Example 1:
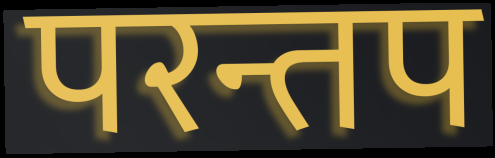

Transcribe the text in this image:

परन्तप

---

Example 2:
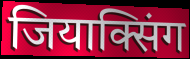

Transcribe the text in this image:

जियाक्सिंग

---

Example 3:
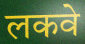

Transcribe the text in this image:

लकवे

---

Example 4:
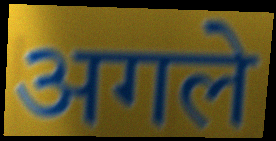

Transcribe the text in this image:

अगले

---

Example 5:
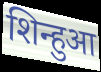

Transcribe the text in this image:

शिन्हुआ